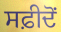
ਸਫ਼ੀਦੋਂ